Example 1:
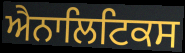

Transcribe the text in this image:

ਐਨਾਲਿਟਿਕਸ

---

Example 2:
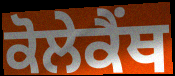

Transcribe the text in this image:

ਕੋਲੇਕੈਂਥ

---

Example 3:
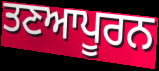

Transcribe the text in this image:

ਤਣਆਪੂਰਨ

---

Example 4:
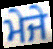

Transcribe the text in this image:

ਮੇਜੇ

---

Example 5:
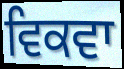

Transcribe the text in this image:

ਵਿਕਵਾ